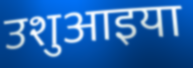
उशुआइया